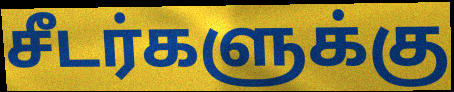
சீடர்களுக்கு